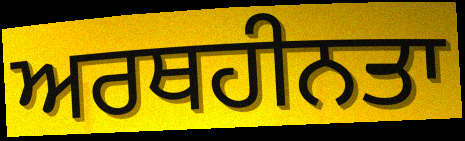
ਅਰਥਹੀਨਤਾ